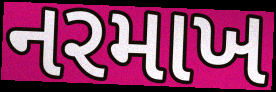
નરમાખ